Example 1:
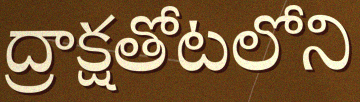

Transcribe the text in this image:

ద్రాక్షతోటలోని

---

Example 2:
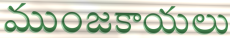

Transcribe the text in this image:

ముంజకాయలు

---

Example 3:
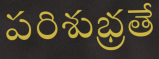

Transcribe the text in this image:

పరిశుభ్రతే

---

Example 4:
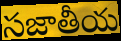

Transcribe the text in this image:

సజాతీయ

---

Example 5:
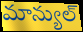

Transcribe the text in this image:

మాన్యుల్